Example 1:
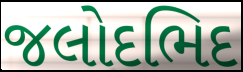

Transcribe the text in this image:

જલોદભિદ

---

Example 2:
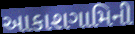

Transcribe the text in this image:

આકાશગામિની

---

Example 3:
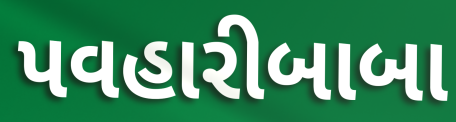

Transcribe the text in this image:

પવહારીબાબા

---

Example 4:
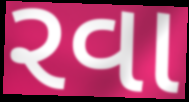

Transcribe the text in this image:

રવા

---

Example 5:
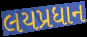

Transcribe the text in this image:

લયપ્રધાન